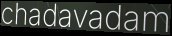
chadavadam